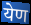
येण